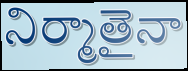
నిర్మాతైనా